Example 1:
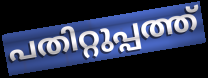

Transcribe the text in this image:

പതിറ്റുപ്പത്ത്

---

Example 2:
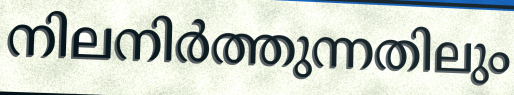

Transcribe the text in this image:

നിലനിർത്തുന്നതിലും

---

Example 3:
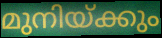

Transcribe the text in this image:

മുനിയ്ക്കും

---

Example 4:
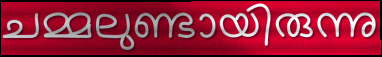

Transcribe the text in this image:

ചമ്മലുണ്ടായിരുന്നു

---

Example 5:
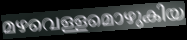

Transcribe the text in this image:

മഴവെള്ളമൊഴുകിയ